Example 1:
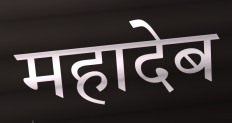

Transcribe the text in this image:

महादेब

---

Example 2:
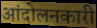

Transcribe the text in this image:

आंदोलनकारी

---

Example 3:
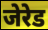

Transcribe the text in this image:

जेरेड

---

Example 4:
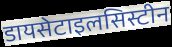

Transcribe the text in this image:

डायसेटाइलसिस्टीन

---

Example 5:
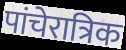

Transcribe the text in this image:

पांचेरात्रिक